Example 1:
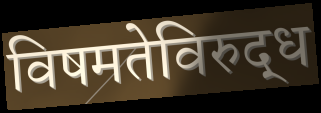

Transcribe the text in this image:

विषमतेविरुद्ध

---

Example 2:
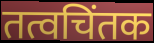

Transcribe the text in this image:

तत्वचिंतक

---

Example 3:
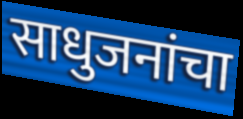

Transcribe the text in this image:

साधुजनांचा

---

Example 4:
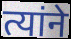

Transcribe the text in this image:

त्यांने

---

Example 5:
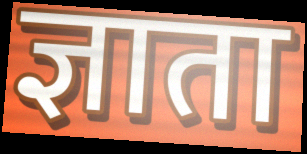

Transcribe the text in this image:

ज्ञाता